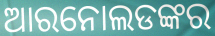
ଆରନୋଲଡଙ୍କର